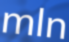
mln